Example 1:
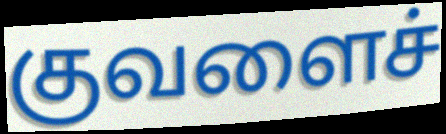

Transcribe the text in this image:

குவளைச்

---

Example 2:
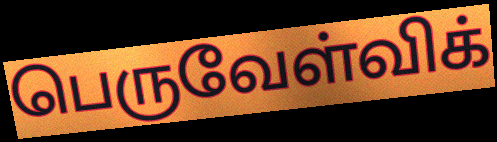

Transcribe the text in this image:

பெருவேள்விக்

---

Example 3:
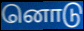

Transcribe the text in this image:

னொடு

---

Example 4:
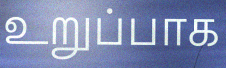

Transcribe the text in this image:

உறுப்பாக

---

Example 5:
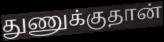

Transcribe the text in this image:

துணுக்குதான்